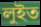
লুইত